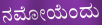
ನಮೋಯೆಂದು